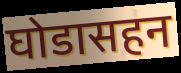
घोडासहन